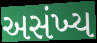
અસંખ્ય